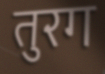
तुरग